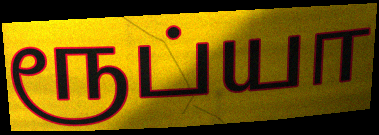
ரூப்யா